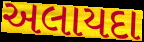
અલાયદા